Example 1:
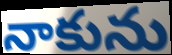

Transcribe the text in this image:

నాకును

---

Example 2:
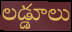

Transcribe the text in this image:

లడ్డూలు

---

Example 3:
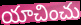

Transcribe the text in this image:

యాచించు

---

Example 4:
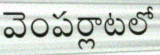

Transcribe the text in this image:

వెంపర్లాటలో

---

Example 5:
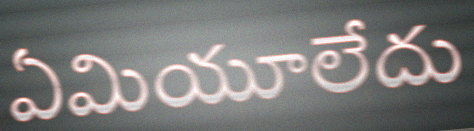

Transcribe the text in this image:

ఏమియూలేదు